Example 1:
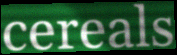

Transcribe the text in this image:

cereals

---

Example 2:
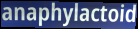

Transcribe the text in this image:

anaphylactoid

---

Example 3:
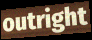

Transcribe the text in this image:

outright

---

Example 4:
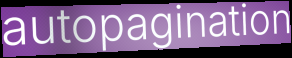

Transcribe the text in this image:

autopagination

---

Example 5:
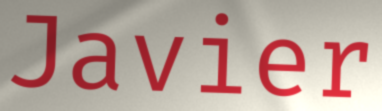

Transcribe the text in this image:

Javier